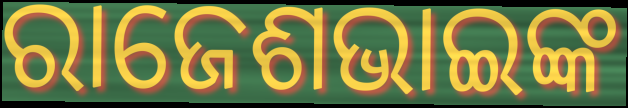
ରାଜେଶଭାଇଙ୍କ